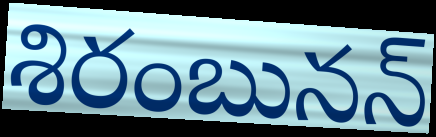
శిరంబునన్